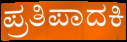
ಪ್ರತಿಪಾದಕಿ